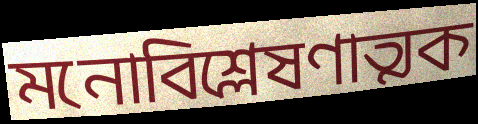
মনোবিশ্লেষণাত্মক